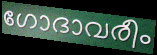
ഗോദാവരീം